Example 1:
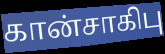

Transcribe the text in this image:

கான்சாகிபு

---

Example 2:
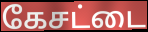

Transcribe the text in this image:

கேசட்டை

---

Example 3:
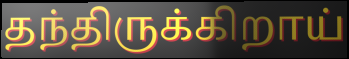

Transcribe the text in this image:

தந்திருக்கிறாய்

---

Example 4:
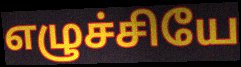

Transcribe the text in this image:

எழுச்சியே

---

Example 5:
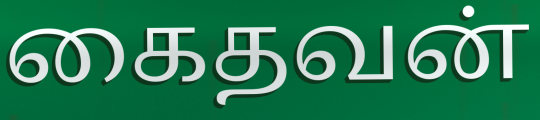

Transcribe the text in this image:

கைதவன்